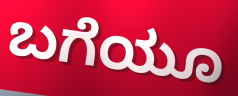
ಬಗೆಯೂ